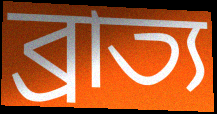
ব্রাত্য